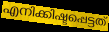
എനിക്കിഷ്ടപ്പെട്ടത്